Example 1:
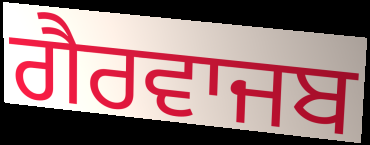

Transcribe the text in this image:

ਗੈਰਵਾਜਬ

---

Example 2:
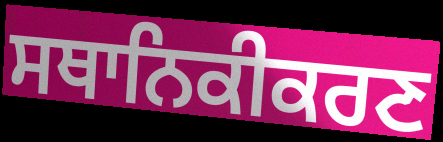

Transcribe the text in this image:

ਸਥਾਨਿਕੀਕਰਣ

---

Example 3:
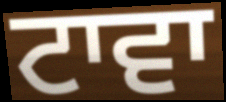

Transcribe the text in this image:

ਟਾਵਾ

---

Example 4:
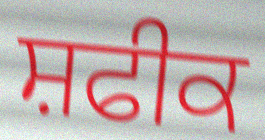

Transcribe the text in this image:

ਸ਼ਫੀਕ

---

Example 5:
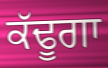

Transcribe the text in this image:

ਕੱਢੂਗਾ